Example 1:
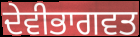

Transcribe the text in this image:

ਦੇਵੀਭਾਗਵਤ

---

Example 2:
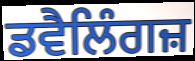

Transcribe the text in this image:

ਡਵੈਲਿੰਗਜ਼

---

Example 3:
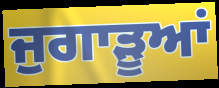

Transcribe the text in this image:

ਜੁਗਾੜੂਆਂ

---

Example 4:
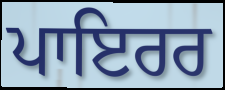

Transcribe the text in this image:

ਪਾਇਰਰ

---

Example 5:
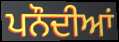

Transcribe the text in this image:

ਪਨੌਦੀਆਂ